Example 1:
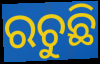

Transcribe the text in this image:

ରଚୁଛି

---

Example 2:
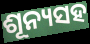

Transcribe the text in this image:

ଶୂନ୍ୟସହ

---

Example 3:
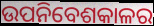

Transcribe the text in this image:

ଉପନିବେଶକାଳର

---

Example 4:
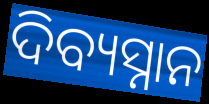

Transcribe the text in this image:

ଦିବ୍ୟସ୍ନାନ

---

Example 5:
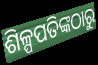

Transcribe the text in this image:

ଶିଳ୍ପପତିଙ୍କଠାରୁ